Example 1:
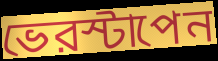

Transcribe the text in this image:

ভেরস্টাপেন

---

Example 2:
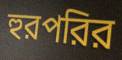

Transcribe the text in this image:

হুরপরির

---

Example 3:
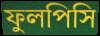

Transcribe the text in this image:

ফুলপিসি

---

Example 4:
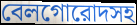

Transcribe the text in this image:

বেলগোরোদসহ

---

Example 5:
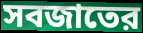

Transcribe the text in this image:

সবজাতের